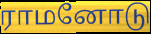
ராமனோடு